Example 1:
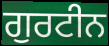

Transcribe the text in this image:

ਗੁਰਟੀਨ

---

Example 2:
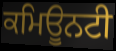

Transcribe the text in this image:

ਕਮਿਊਨਟੀ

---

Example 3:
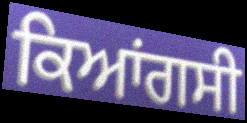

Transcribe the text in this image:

ਕਿਆਂਗਸੀ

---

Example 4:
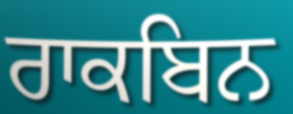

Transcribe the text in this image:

ਰਾਕਬਿਨ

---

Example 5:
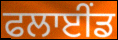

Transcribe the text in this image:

ਫਲਾਈਂਡ